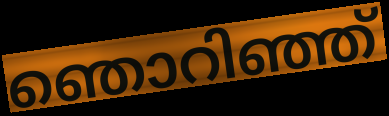
ഞൊറിഞ്ഞ്